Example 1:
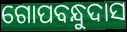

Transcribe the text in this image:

ଗୋପବନ୍ଧୁଦାସ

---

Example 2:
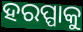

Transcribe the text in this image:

ହରପ୍ପାକୁ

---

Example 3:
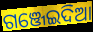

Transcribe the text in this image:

ଗଞ୍ଜେଇଦିଆ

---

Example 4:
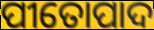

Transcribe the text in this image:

ପୀତୋପାଦ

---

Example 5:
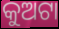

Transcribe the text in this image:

କୁଅଟା